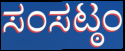
ಸಂಸಟ್ಠಂ